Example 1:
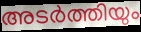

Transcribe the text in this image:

അടർത്തിയും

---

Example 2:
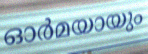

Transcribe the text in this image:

ഓർമയായും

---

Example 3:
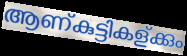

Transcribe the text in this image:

ആണ്കുട്ടികള്ക്കും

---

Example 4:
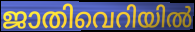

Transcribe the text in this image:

ജാതിവെറിയിൽ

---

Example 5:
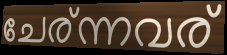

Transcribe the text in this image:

ചേര്ന്നവര്